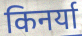
किनर्या